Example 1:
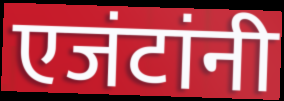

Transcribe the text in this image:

एजंटांनी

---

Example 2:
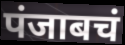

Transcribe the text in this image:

पंजाबचं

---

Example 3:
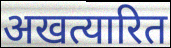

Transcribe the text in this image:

अखत्यारित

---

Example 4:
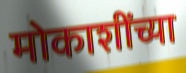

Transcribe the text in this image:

मोकाशींच्या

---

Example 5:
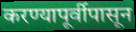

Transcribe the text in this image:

करण्यापूर्वीपासून